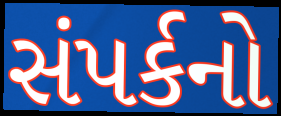
સંપર્કનો